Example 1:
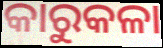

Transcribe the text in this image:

କାରୁକଳା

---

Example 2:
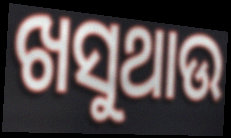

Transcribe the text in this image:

ଖସୁଥାଉ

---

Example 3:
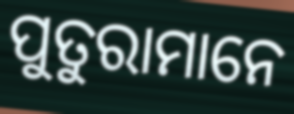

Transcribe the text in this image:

ପୁତୁରାମାନେ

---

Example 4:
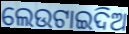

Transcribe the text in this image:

ଲେଉଟାଇଦିଅ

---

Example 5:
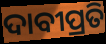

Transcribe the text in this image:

ଦାବୀପ୍ରତି